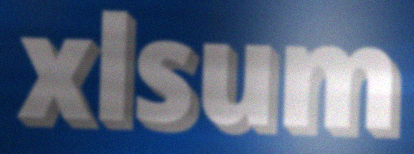
xlsum